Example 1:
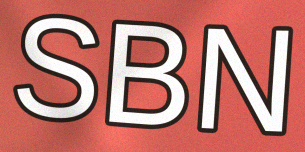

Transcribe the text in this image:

SBN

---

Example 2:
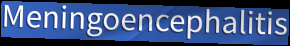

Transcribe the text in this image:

Meningoencephalitis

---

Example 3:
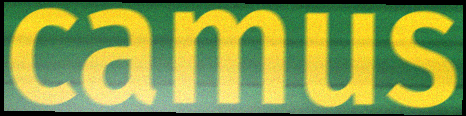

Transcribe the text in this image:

camus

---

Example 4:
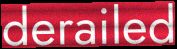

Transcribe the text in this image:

derailed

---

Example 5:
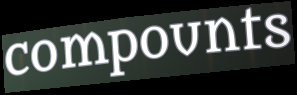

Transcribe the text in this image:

compounts